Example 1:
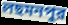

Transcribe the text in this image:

লছমনপুর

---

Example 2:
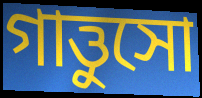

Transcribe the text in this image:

গাত্তুসো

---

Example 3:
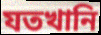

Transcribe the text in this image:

যতখানি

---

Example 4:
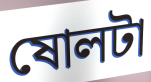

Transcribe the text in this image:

ষোলটা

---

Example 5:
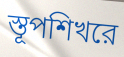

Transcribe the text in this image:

স্তূপশিখরে